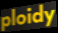
ploidy